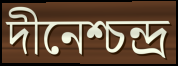
দীনেশ্চন্দ্র